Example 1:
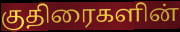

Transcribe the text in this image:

குதிரைகளின்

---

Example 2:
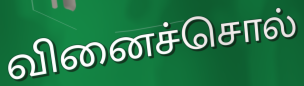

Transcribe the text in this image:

வினைச்சொல்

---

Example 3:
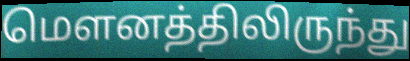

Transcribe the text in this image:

மௌனத்திலிருந்து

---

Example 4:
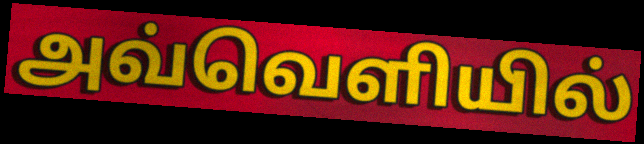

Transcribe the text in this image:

அவ்வெளியில்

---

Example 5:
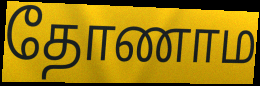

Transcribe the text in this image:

தோணாம